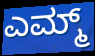
ಎಮ್ಮ್